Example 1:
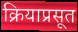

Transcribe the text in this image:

क्रियाप्रसूत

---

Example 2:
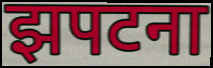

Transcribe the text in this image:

झपटना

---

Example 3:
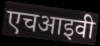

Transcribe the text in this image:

एचआइवी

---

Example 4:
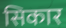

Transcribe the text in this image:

सिकार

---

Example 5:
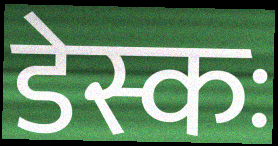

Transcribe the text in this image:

डेस्कः